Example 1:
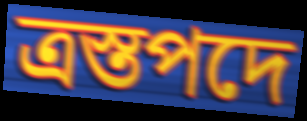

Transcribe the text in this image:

ত্রস্তপদে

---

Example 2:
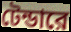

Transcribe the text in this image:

টেন্ডারে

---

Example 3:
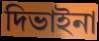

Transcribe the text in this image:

দিভাইনা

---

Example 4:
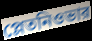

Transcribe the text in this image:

প্লেতনিওভার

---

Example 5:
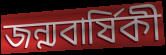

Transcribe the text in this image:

জন্মবার্ষিকী